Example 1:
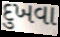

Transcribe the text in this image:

દુખવા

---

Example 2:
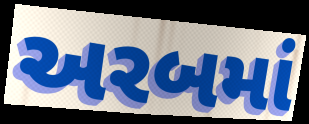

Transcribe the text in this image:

અરબમાં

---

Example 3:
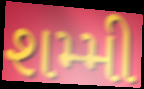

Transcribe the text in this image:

શમ્મી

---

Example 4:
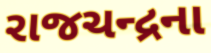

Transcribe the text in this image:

રાજચન્દ્રના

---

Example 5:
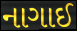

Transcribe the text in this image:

નાગાઈ